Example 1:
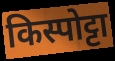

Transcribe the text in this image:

किस्पोट्टा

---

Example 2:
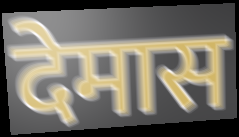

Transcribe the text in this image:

देमास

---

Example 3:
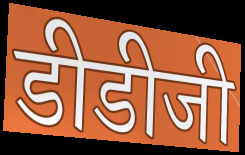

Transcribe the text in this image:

डीडीजी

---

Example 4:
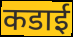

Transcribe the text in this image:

कडाई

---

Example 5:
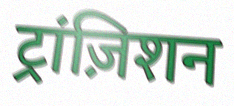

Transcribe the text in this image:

ट्रांज़िशन